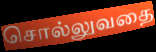
சொல்லுவதை